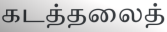
கடத்தலைத்